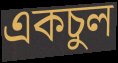
একচুল